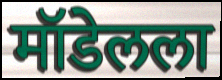
मॉडेलला